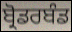
ਬ੍ਰੋਡਰਬੰਡ